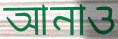
আনাও